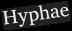
Hyphae